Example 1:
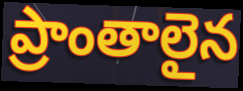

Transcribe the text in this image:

ప్రాంతాలైన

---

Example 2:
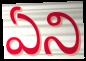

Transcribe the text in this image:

ఏని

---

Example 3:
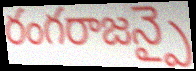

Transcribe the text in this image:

రంగరాజన్పై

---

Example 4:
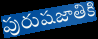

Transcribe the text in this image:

పురుషజాతికి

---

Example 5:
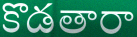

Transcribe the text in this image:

కొడతారా